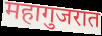
महागुजरात